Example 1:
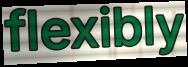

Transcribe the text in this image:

flexibly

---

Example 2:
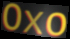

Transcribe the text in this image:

Oxo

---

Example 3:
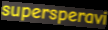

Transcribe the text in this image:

supersperavi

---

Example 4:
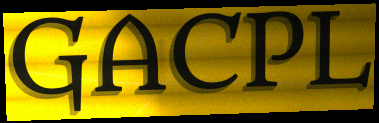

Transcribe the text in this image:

GACPL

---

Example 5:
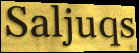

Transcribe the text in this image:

Saljuqs